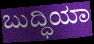
ಬುದ್ಧಿಯಾ